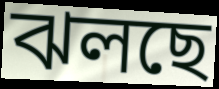
ঝলছে